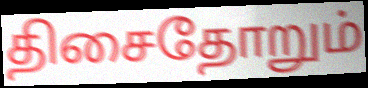
திசைதோறும்